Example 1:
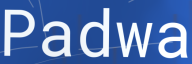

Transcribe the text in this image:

Padwa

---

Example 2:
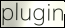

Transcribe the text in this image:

plugin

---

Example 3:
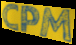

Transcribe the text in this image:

CPM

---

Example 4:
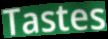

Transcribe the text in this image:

Tastes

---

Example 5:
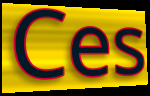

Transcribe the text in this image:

Ces